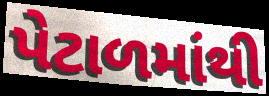
પેટાળમાંથી